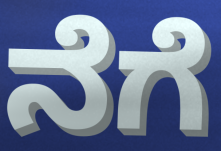
ನೆಗೆ